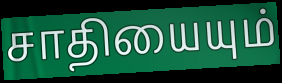
சாதியையும்